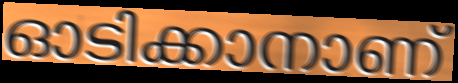
ഓടിക്കാനാണ്